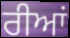
ਰੀਆਂ